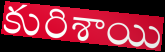
కురిశాయి